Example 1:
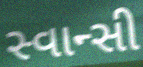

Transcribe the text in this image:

સ્વાન્સી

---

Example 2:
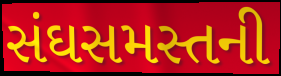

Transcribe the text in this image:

સંઘસમસ્તની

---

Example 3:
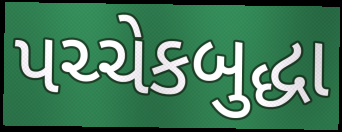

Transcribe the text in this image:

પચ્ચેકબુદ્ધા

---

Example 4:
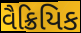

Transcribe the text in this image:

વૈક્રિયિક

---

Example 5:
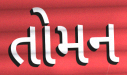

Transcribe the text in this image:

તોમન